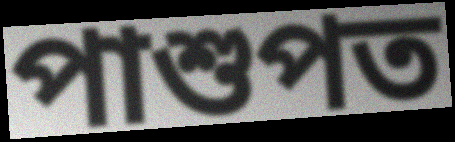
পাশুপত